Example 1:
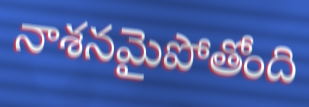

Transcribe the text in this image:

నాశనమైపోతోంది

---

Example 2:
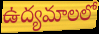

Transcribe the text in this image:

ఉద్యమాలలో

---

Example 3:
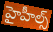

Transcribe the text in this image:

హైహీల్స్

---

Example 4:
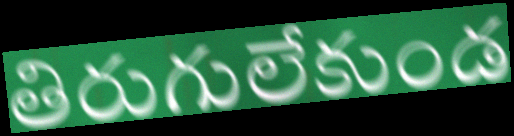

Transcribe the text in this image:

తిరుగులేకుండ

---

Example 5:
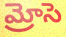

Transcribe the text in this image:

మ్రోసె